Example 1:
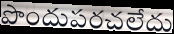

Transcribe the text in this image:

పొందుపరచలేదు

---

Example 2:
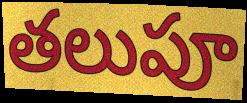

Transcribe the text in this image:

తలుపూ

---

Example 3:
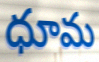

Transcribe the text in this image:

ధూమ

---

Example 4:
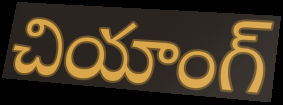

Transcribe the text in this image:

చియాంగ్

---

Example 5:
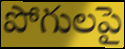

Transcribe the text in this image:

పోగులపై